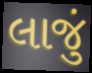
લાજું